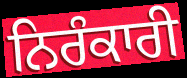
ਨਿਰੰਕਾਰੀ